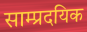
साम्प्रदयिक